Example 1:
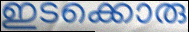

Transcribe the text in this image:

ഇടക്കൊരു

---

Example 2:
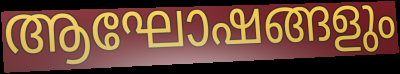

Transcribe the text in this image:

ആഘോഷങ്ങളും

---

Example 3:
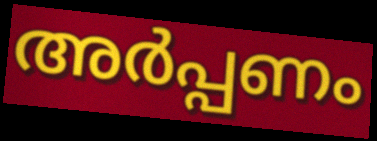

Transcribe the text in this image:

അർപ്പണം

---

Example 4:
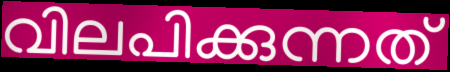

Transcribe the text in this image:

വിലപിക്കുന്നത്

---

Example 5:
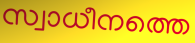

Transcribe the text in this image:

സ്വാധീനത്തെ